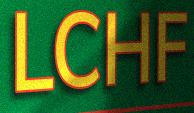
LCHF